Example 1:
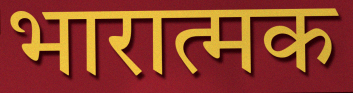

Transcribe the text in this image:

भारात्मक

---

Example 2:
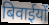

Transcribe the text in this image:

बिवाईयों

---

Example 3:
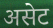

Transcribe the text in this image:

असेट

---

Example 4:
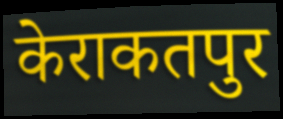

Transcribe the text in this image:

केराकतपुर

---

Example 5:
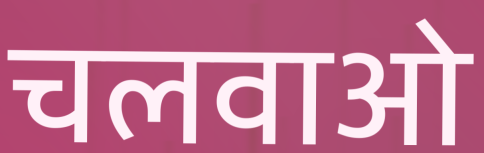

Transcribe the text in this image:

चलवाओ